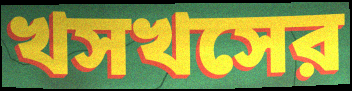
খসখসের